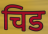
चिड